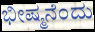
ಭೀಷ್ಮನೆಂದು